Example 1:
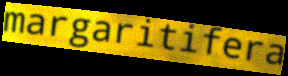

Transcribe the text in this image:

margaritifera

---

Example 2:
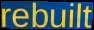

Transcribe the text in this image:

rebuilt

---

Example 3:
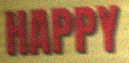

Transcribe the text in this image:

HAPPY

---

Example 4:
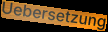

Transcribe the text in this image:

Uebersetzung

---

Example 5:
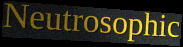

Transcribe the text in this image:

Neutrosophic